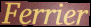
Ferrier